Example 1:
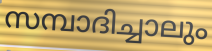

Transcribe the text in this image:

സമ്പാദിച്ചാലും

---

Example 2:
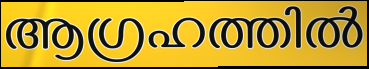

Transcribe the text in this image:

ആഗ്രഹത്തിൽ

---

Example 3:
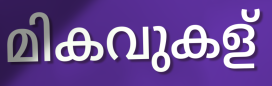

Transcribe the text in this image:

മികവുകള്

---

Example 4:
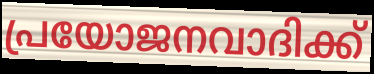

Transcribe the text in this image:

പ്രയോജനവാദിക്ക്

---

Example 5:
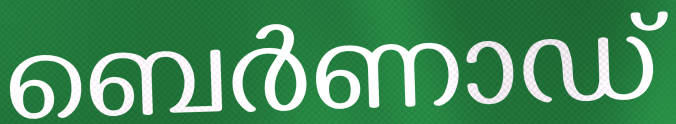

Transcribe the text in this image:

ബെർണാഡ്